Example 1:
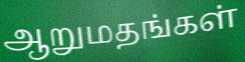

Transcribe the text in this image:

ஆறுமதங்கள்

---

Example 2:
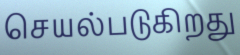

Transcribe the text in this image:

செயல்படுகிறது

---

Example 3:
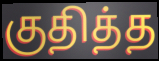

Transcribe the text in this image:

குதித்த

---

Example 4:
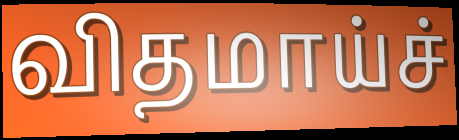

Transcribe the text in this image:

விதமாய்ச்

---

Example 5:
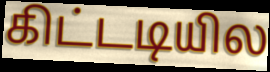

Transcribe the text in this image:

கிட்டடியில